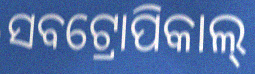
ସବଟ୍ରୋପିକାଲ୍